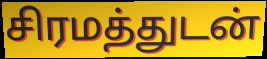
சிரமத்துடன்